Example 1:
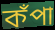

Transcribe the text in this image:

কঁপা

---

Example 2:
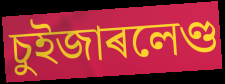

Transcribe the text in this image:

চুইজাৰলেণ্ড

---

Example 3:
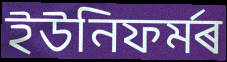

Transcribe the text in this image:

ইউনিফৰ্মৰ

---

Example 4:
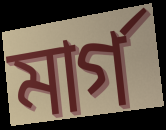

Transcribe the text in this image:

মাৰ্গ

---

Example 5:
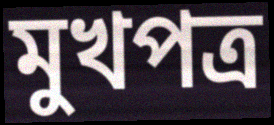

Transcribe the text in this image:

মুখপত্ৰ